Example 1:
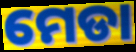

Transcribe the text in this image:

ମେଡା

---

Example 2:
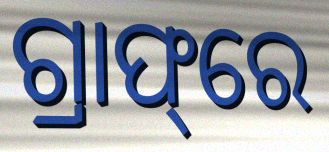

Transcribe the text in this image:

ଗ୍ରାଫ୍‌ରେ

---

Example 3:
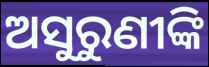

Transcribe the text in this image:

ଅସୁରୁଣୀଙ୍କି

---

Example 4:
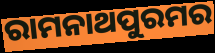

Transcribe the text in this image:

ରାମନାଥପୁରମର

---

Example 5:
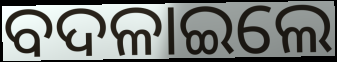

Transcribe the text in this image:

ବଦଳାଇଲେ